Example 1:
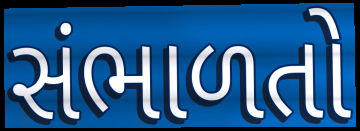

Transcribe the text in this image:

સંભાળતો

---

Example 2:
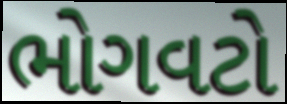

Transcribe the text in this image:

ભોગવટો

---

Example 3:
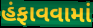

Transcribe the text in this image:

હંફાવવામાં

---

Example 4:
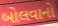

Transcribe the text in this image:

બોલવાનો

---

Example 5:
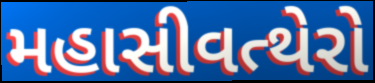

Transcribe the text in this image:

મહાસીવત્થેરો